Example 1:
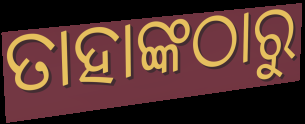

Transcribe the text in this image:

ତାହାଙ୍କଠାରୁ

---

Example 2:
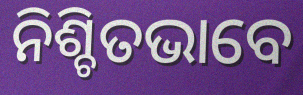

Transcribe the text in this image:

ନିଶ୍ଚିତଭାବେ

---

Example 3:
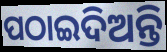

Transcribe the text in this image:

ପଠାଇଦିଅନ୍ତି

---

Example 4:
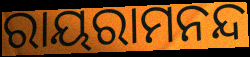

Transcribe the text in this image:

ରାୟରାମନନ୍ଦ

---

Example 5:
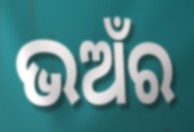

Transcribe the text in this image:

ଭଅଁର